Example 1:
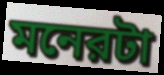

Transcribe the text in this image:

মনেরটা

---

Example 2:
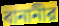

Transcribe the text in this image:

বানানীর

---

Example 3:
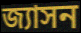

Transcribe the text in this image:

জ্যাসন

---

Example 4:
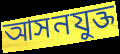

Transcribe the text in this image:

আসনযুক্ত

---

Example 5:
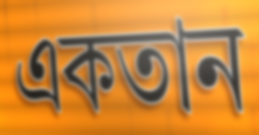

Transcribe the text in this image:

একতান